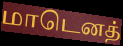
மாடெனத்